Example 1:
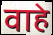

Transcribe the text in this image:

वाहे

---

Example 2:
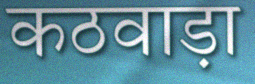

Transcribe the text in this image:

कठवाड़ा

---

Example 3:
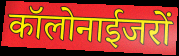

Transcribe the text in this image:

कॉलोनाईजरों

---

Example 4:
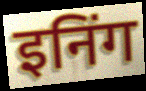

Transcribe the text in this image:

इनिंग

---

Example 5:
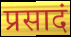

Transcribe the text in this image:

प्रसादं